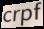
crpf